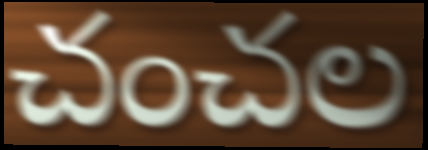
చంచల